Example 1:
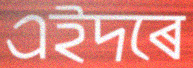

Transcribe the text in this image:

এইদৰে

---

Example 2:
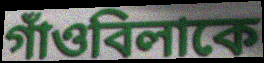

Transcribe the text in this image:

গাঁওবিলাকে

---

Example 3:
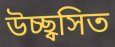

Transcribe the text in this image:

উচ্ছ্বসিত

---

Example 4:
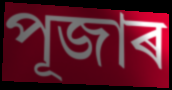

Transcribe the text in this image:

পূজাৰ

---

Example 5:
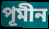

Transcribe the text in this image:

পূমীন